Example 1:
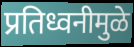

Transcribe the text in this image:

प्रतिध्वनीमुळे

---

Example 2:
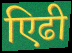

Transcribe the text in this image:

एिढी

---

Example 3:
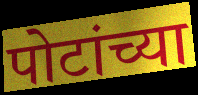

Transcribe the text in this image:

पोटांच्या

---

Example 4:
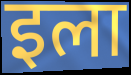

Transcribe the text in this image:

इला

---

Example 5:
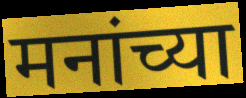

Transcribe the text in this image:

मनांच्या